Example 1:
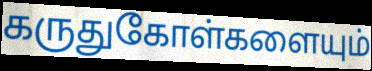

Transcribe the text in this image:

கருதுகோள்களையும்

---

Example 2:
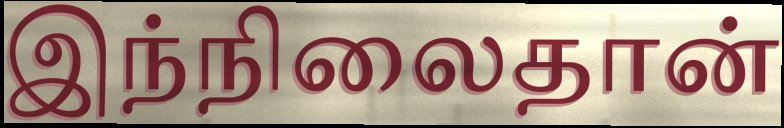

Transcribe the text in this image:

இந்நிலைதான்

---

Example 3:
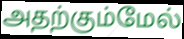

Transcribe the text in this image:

அதற்கும்மேல்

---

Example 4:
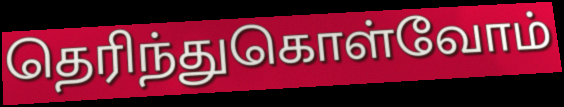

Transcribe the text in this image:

தெரிந்துகொள்வோம்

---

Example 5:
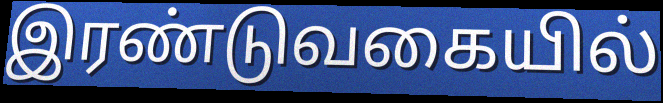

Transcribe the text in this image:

இரண்டுவகையில்